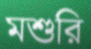
মশুরি